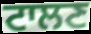
ਟਾਲਣ